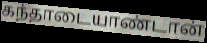
கந்தாடையாண்டான்